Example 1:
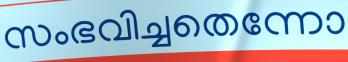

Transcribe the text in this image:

സംഭവിച്ചതെന്നോ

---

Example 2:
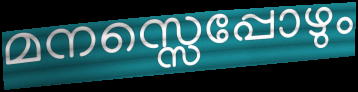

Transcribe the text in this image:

മനസ്സെപ്പോഴും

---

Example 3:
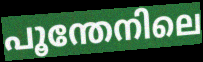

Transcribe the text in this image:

പൂന്തേനിലെ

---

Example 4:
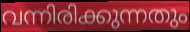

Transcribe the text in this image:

വന്നിരിക്കുന്നതും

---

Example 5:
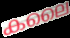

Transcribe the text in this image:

കലൈ